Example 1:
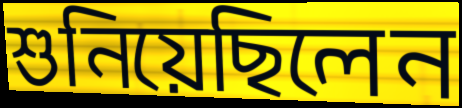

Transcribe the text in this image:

শুনিয়েছিলেন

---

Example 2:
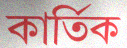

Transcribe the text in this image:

কার্তিক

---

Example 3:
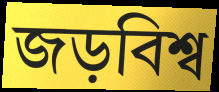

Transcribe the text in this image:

জড়বিশ্ব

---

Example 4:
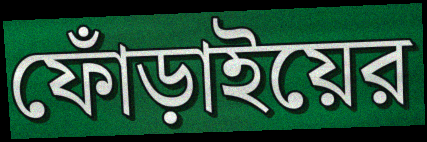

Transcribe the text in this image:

ফোঁড়াইয়ের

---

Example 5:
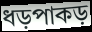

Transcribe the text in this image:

ধড়পাকড়